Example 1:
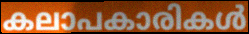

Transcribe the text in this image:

കലാപകാരികൾ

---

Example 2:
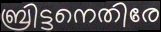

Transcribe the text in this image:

ബ്രിട്ടനെതിരേ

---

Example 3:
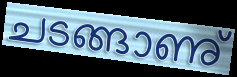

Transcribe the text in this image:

ചടങ്ങാണു്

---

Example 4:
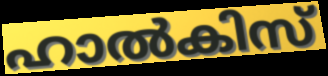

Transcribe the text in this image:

ഹാൽകിസ്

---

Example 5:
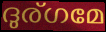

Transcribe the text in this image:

ദുര്ഗമേ